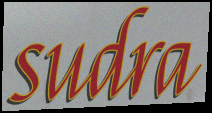
sudra